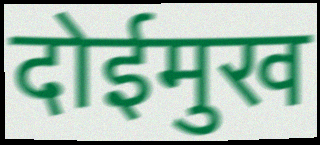
दोईमुख